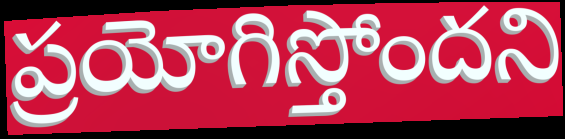
ప్రయోగిస్తోందని